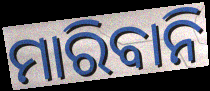
ମାରିବାନି